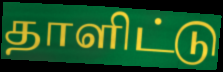
தாளிட்டு